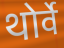
थोर्वे